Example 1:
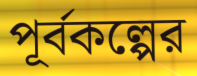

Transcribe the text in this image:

পূর্বকল্পের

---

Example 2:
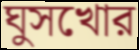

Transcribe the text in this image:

ঘুসখোর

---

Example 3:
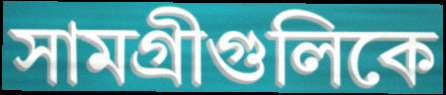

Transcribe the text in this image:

সামগ্রীগুলিকে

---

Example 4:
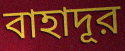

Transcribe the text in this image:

বাহাদূর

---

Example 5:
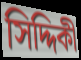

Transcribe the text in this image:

সিদ্দিকী